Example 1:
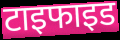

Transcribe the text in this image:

टाइफाइड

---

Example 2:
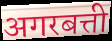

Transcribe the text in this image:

अगरबत्ती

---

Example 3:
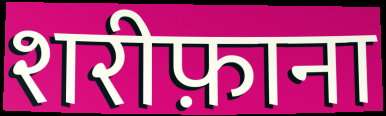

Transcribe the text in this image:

शरीफ़ाना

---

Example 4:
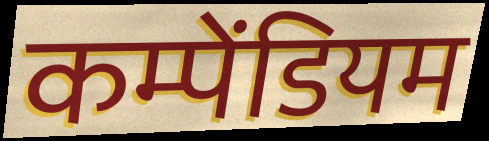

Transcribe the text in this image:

कम्पेंडियम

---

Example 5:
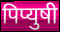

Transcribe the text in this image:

पिप्युषी